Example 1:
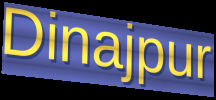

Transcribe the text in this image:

Dinajpur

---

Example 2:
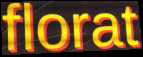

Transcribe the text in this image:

florat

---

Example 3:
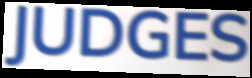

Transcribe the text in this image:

JUDGES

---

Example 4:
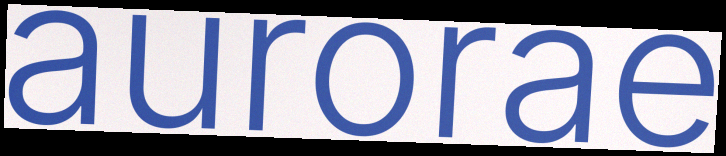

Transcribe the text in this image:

aurorae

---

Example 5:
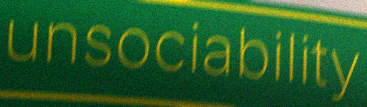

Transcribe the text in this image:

unsociability